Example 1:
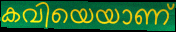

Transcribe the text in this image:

കവിയെയാണ്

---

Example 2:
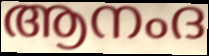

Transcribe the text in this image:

ആനംദ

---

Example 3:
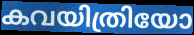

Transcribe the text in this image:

കവയിത്രിയോ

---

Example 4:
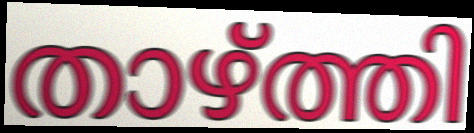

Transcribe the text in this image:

താഴ്ത്തി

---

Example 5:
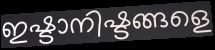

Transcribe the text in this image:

ഇഷ്ടാനിഷ്ടങ്ങളെ